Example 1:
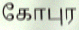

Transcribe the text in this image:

கோபுர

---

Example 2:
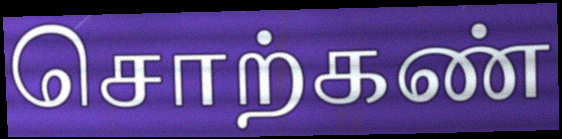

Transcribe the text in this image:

சொற்கண்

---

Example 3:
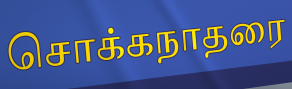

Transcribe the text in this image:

சொக்கநாதரை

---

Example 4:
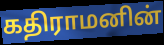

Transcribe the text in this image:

கதிராமனின்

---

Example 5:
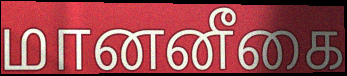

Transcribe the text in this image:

மானனீகை